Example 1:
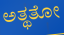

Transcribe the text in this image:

ಅತ್ಥತೋ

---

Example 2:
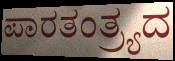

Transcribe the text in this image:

ಪಾರತಂತ್ರ್ಯದ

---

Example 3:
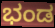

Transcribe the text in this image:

ಭಂಡ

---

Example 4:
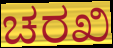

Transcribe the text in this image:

ಚರಖಿ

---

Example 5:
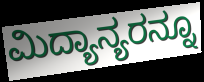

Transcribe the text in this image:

ಮಿದ್ಯಾನ್ಯರನ್ನೂ